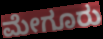
ಮೇಗೂರು